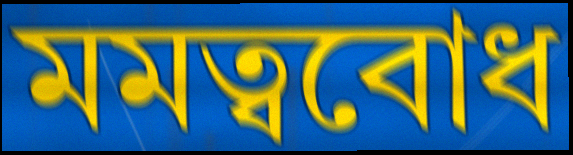
মমত্ববোধ